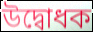
উদ্বোধক